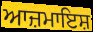
ਆਜ਼ਮਾਇਸ਼